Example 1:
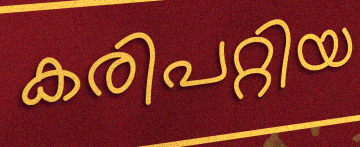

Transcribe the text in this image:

കരിപറ്റിയ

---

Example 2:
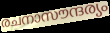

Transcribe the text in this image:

രചനാസൗന്ദര്യം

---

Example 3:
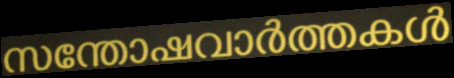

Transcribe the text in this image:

സന്തോഷവാർത്തകൾ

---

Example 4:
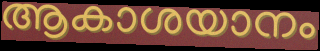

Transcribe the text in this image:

ആകാശയാനം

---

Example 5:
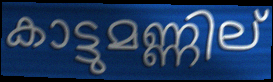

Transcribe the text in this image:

കാട്ടുമണ്ണില്